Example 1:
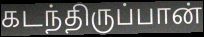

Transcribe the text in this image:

கடந்திருப்பான்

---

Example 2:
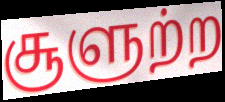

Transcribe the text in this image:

சூளுற்ற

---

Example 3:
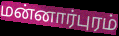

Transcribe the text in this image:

மன்னார்புரம்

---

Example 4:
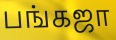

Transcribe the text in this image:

பங்கஜா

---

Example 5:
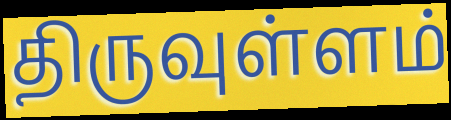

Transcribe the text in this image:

திருவுள்ளம்